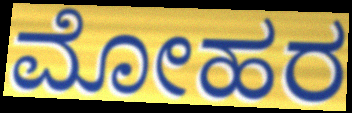
ಮೋಹರ